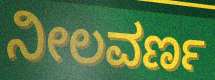
ನೀಲವರ್ಣ